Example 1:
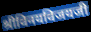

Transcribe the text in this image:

श्रीविनयविजयजी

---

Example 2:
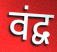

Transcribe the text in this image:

वंद्व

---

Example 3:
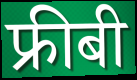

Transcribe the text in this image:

फ्रीबी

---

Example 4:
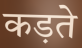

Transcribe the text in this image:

कड़ते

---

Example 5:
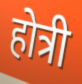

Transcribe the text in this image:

होत्री